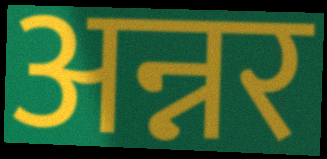
अन्नर